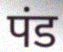
पंड